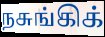
நசுங்கிக்